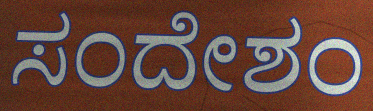
ಸಂದೇಶಂ